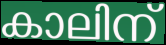
കാലിന്